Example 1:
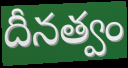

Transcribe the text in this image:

దీనత్వం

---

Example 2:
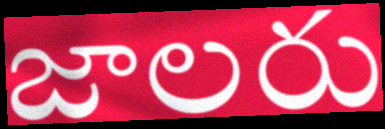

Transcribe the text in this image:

జాలరు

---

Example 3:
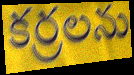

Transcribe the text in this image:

కర్రలను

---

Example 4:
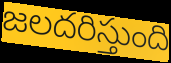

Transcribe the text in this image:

జలదరిస్తుంది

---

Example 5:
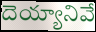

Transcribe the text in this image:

దెయ్యానివే